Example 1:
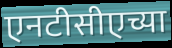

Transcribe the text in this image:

एनटीसीएच्या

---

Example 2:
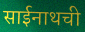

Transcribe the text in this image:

साईनाथची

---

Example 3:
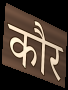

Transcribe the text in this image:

कौर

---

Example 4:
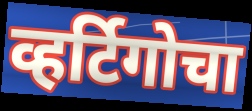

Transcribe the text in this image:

व्हर्टिगोचा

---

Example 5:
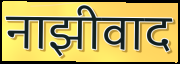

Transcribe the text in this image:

नाझीवाद